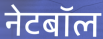
नेटबॉल